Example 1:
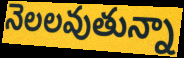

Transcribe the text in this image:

నెలలవుతున్నా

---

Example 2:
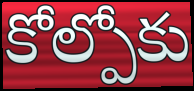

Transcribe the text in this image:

కోల్పోకు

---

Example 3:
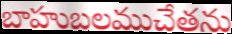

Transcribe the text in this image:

బాహుబలముచేతను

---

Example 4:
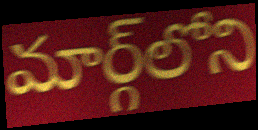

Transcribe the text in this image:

మార్గ్‌లోని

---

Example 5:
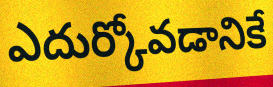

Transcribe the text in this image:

ఎదుర్కోవడానికే